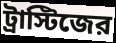
ট্রাস্টিজের